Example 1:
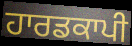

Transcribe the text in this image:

ਹਾਰਡਕਾਪੀ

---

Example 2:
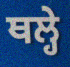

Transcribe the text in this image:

ਥਲ੍ਹੇ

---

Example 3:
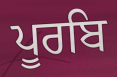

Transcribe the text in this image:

ਪੂਰਬਿ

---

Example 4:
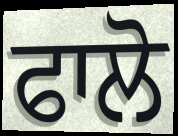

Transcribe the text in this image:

ਫਾਲੋ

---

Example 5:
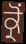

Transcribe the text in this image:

ਕ੍ਰੋਂ